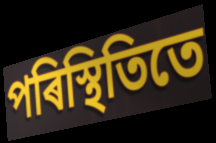
পৰিস্থিতিতে